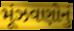
મૂંઝવણોનું